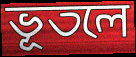
ভূতলে